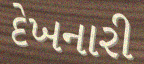
દેખનારી